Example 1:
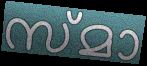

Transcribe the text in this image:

സ്മാ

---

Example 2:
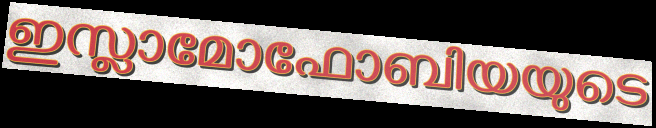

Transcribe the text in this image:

ഇസ്ലാമോഫോബിയയുടെ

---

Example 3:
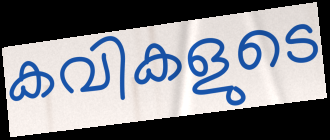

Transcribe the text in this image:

കവികളുടെ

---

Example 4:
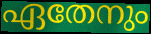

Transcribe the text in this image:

ഏതേനും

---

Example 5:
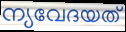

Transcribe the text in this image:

ന്യവേദയത്